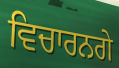
ਵਿਚਾਰਨਗੇ